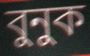
বুনুক